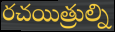
రచయిత్రుల్ని